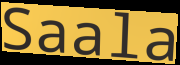
Saala